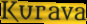
Kurava